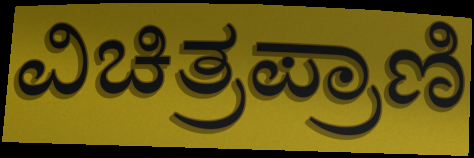
ವಿಚಿತ್ರಪ್ರಾಣಿ